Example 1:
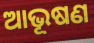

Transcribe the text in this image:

ଆଭୂଷଣ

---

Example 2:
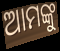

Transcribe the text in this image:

ଆମଙ୍କୁ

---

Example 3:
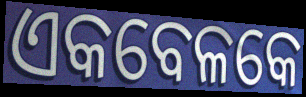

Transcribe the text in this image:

ଏକବେଳକେ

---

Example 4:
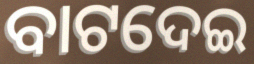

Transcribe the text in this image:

ବାଟଦେଇ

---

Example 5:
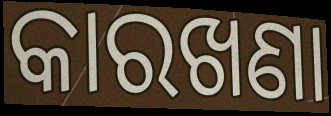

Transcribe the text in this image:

କାରଖଣା